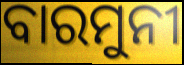
ବାରମୁନୀ